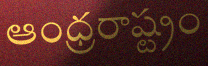
ఆంధ్రరాష్ట్రం